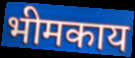
भीमकाय